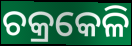
ଚକ୍ରକେଳି